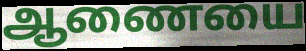
ஆணையை